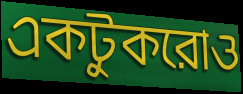
একটুকরোও